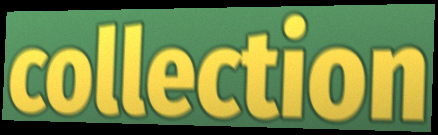
collection